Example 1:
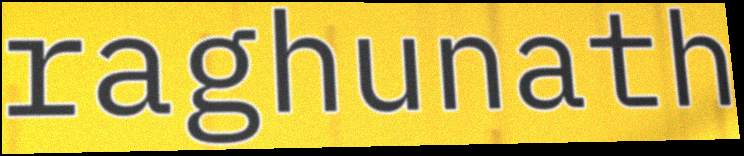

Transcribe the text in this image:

raghunath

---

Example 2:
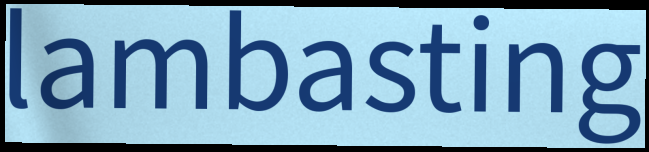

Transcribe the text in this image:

lambasting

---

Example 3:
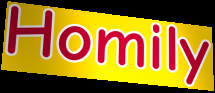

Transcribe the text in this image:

Homily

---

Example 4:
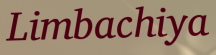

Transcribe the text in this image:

Limbachiya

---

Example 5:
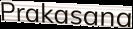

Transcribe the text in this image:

Prakasana